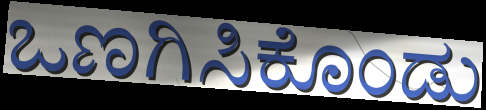
ಒಣಗಿಸಿಕೊಂಡು